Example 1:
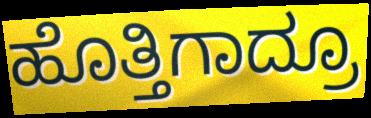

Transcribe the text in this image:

ಹೊತ್ತಿಗಾದ್ರೂ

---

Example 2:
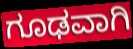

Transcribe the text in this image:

ಗೂಢವಾಗಿ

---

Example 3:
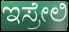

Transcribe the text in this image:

ಇಸ್ರೇಲಿ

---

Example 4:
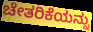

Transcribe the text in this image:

ಚೇತರಿಕೆಯನ್ನು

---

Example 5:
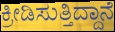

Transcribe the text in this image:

ಕ್ರೀಡಿಸುತ್ತಿದ್ದಾನೆ